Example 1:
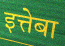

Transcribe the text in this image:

इत्तेबा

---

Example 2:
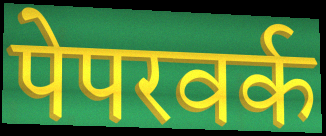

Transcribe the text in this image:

पेपरवर्क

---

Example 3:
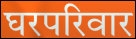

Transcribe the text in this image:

घरपरिवार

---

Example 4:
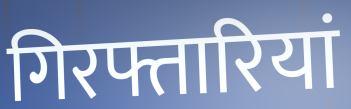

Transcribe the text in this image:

गिरफ्तारियां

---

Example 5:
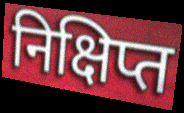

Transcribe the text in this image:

निक्षिप्त